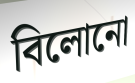
বিলোনো